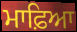
ਮਾਫ਼ਿਆ